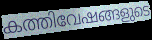
കത്തിവേഷങ്ങളുടെ